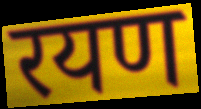
रयण